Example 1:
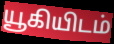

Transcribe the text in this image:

யூகியிடம்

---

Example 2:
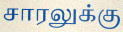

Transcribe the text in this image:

சாரலுக்கு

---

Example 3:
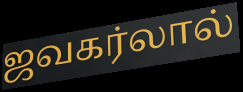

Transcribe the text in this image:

ஜவகர்லால்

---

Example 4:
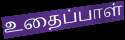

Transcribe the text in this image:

உதைப்பாள்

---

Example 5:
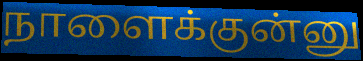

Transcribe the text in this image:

நாளைக்குன்னு